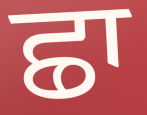
ਛਾ